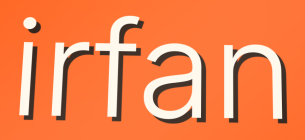
irfan